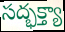
సద్భక్త్యా